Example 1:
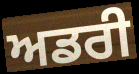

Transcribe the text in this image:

ਅਡਰੀ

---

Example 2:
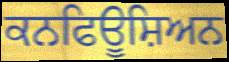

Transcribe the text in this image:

ਕਨਫਿਊਸ਼ਿਅਨ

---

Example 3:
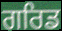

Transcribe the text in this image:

ਗਰਿਡ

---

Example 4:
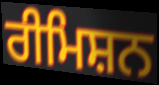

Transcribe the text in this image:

ਰੀਮਿਸ਼ਨ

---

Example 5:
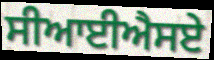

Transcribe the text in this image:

ਸੀਆਈਐਸਏ